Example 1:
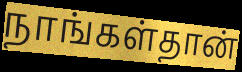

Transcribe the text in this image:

நாங்கள்தான்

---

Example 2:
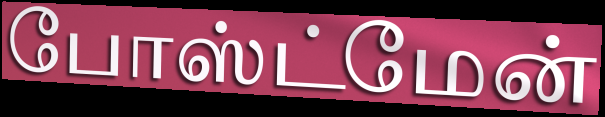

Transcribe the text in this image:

போஸ்ட்மேன்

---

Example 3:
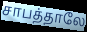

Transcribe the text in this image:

சாபத்தாலே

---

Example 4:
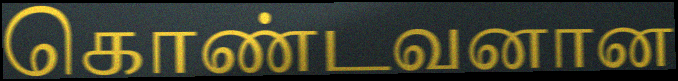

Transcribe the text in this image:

கொண்டவனான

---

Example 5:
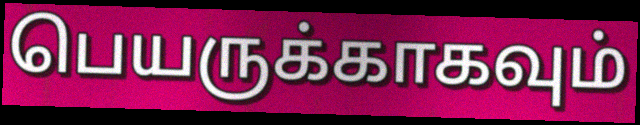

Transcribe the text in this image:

பெயருக்காகவும்